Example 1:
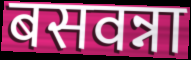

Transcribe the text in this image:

बसवन्ना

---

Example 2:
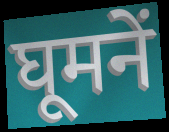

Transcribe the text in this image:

घूमनें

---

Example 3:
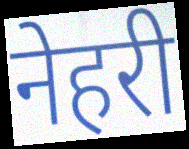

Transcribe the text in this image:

नेहरी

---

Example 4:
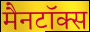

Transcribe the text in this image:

मैनटॉक्स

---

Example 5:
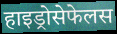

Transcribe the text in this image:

हाइड्रोसेफेलस